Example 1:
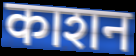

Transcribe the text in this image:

काशन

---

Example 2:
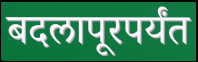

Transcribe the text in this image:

बदलापूरपर्यंत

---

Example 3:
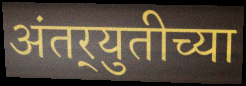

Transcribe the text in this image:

अंतर्युतीच्या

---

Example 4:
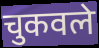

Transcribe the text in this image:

चुकवले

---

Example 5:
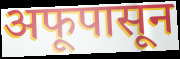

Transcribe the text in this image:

अफूपासून